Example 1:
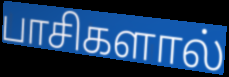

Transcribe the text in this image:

பாசிகளால்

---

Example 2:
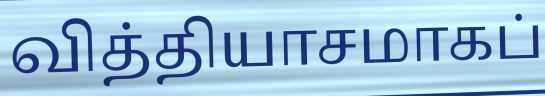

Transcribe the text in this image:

வித்தியாசமாகப்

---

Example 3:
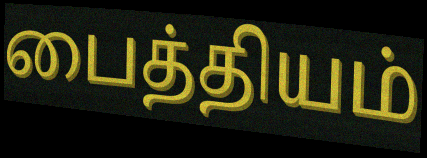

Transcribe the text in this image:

பைத்தியம்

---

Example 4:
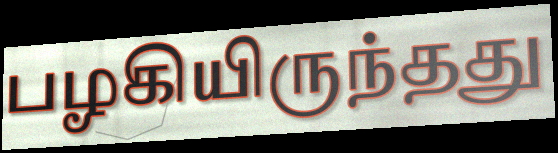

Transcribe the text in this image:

பழகியிருந்தது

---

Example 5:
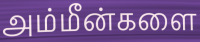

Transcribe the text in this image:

அம்மீன்களை